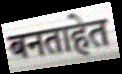
बनताहेत